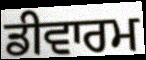
ਡੀਵਾਰਮ